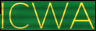
ICWA